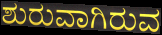
ಶುರುವಾಗಿರುವ